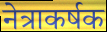
नेत्राकर्षक